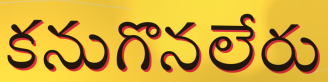
కనుగొనలేరు